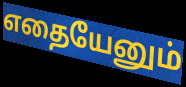
எதையேனும்